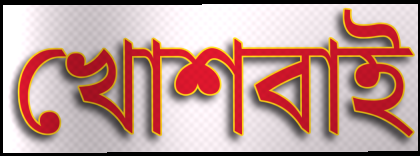
খোশবাই